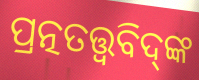
ପ୍ରତ୍ନତତ୍ତ୍ୱବିଦ୍‌ଙ୍କ